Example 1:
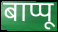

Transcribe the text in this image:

बाप्पू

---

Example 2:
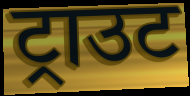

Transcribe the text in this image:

ट्राउट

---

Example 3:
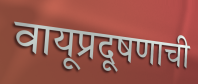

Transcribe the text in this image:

वायूप्रदूषणाची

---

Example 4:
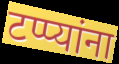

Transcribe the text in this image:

टप्प्यांना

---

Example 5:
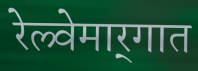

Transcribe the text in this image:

रेल्वेमार्गात